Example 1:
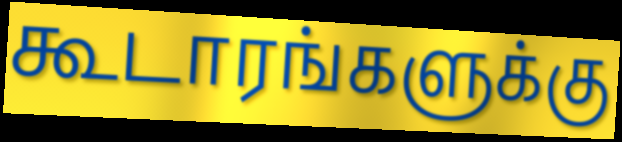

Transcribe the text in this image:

கூடாரங்களுக்கு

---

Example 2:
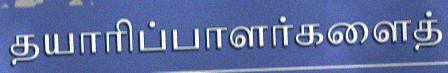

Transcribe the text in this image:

தயாரிப்பாளர்களைத்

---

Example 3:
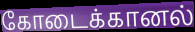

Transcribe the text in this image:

கோடைக்கானல்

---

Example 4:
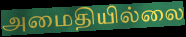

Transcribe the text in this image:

அமைதியில்லை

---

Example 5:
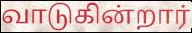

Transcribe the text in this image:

வாடுகின்றார்